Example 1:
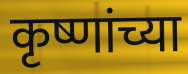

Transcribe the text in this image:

कृष्णांच्या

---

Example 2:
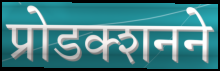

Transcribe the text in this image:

प्रोडक्शनने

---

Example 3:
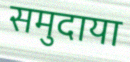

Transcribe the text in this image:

समुदाया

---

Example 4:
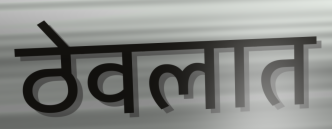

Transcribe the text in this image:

ठेवलात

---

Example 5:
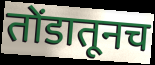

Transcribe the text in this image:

तोंडातूनच